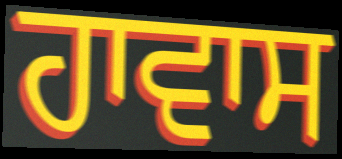
ਹਾਵਾਸ